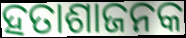
ହତାଶାଜନକ